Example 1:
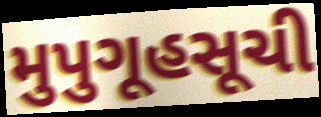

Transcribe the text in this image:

મુપુગૂહસૂચી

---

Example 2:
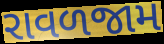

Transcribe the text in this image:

રાવળજામ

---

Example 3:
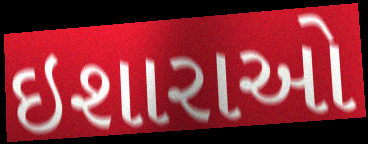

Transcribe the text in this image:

ઇશારાઓ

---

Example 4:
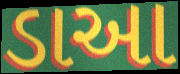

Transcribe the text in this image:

ડાઆ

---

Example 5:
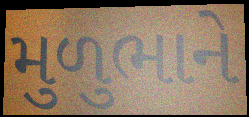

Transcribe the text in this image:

મુળુભાને